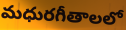
మధురగీతాలలో